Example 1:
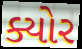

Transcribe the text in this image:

ક્યોર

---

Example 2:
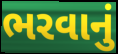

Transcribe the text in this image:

ભરવાનું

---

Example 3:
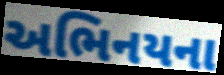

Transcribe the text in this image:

અભિનયના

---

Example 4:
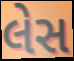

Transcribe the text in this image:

લેસ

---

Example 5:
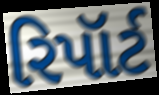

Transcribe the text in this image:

રિપૉર્ટ